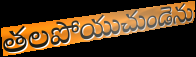
తలపోయుచుండెను